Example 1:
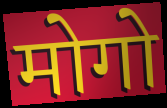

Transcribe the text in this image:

मोगो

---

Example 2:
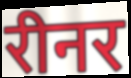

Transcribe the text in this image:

रीनर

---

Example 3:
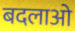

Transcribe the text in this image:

बदलाओ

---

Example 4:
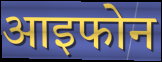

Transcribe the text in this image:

आइफोन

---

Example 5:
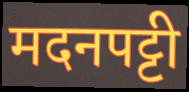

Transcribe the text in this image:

मदनपट्टी